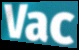
Vac